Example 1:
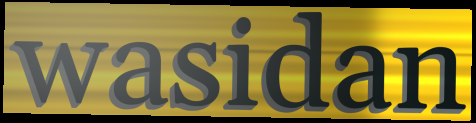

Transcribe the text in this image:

wasidan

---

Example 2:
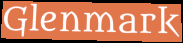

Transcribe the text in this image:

Glenmark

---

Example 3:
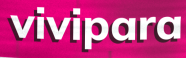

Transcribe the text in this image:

vivipara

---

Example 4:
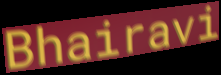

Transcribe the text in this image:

Bhairavi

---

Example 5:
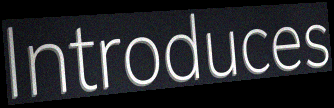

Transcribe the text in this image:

Introduces